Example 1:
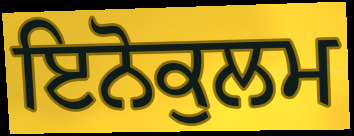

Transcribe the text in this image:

ਇਨੋਕੁਲਮ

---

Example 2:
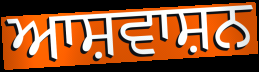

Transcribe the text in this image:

ਆਸ਼ਵਾਸ਼ਨ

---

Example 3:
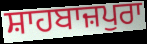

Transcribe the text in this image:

ਸ਼ਾਹਬਾਜ਼ਪੁਰਾ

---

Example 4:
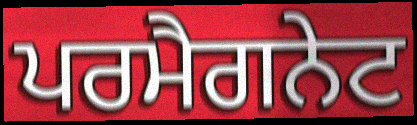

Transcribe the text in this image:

ਪਰਮੈਗਨੇਟ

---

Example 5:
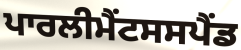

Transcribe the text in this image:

ਪਾਰਲੀਮੈਂਟਸਸਪੈਂਡ